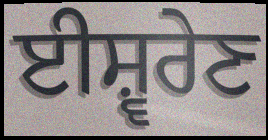
ਈਸ਼੍ਵਰੇਣ